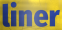
liner